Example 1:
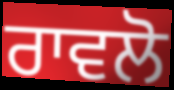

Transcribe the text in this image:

ਰਾਵਲੋ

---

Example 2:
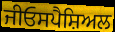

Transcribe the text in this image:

ਜੀਓਸਪੈਸ਼ਿਅਲ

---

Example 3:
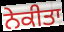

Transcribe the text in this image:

ਨੇਕੀਤਾ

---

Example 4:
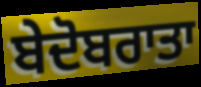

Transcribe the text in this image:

ਬੇਦੋਬਰਾਤਾ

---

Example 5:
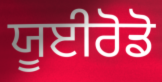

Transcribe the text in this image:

ਯੂਈਰੋਡੋ